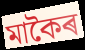
মাকৈৰ